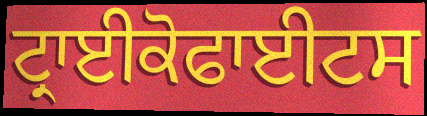
ਟ੍ਰਾਈਕੋਫਾਈਟਸ